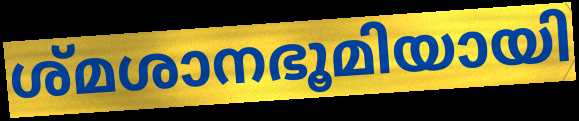
ശ്മശാനഭൂമിയായി